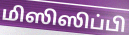
மிஸிஸிப்பி